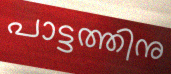
പാട്ടത്തിനു